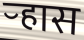
ऱ्हास